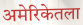
अमेरिकेतला